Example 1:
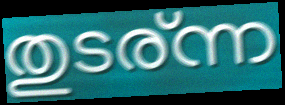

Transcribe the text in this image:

തുടര്ന്ന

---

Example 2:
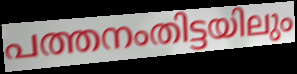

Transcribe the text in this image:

പത്തനംതിട്ടയിലും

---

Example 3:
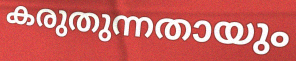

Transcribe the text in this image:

കരുതുന്നതായും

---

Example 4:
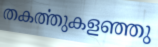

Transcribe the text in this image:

തകൎത്തുകളഞ്ഞു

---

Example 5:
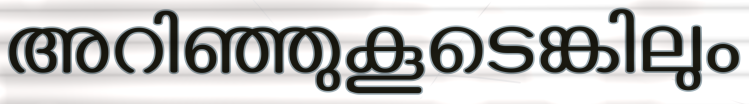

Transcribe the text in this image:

അറിഞ്ഞുകൂടെങ്കിലും